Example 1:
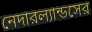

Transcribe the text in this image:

নেদারল্যান্ডসের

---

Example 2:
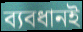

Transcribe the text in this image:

ব্যবধানই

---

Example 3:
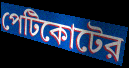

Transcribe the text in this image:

পেটিকোটের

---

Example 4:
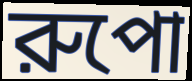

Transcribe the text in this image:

রুপো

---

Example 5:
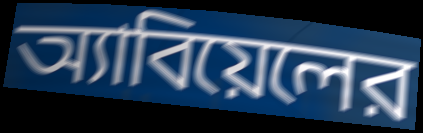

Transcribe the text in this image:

অ্যাবিয়েলের